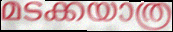
മടക്കയാത്ര